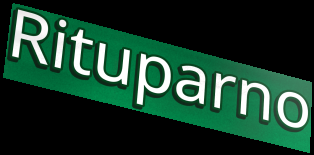
Rituparno